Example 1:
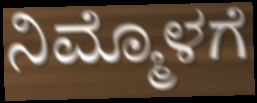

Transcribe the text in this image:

ನಿಮ್ಮೊಳಗೆ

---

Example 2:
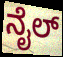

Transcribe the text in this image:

ನೈಲ್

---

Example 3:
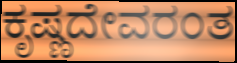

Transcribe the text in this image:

ಕೃಷ್ಣದೇವರಂತ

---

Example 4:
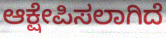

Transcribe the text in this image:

ಆಕ್ಷೇಪಿಸಲಾಗಿದೆ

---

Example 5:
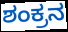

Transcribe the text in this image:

ಶಂಕ್ರನ